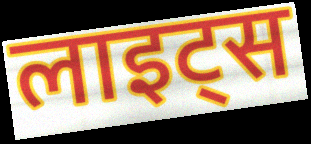
लाइट्स